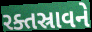
રક્તસ્રાવને